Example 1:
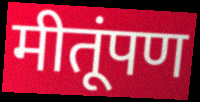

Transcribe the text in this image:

मीतूंपण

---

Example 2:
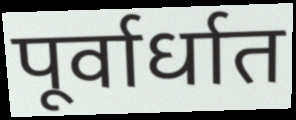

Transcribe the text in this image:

पूर्वार्धात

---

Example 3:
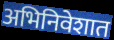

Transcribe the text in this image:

अभिनिवेशात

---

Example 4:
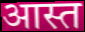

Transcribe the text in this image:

आस्त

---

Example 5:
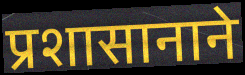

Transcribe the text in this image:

प्रशासानाने